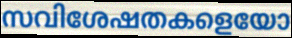
സവിശേഷതകളെയോ